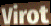
Virot